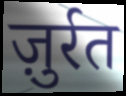
ज़ुर्रत